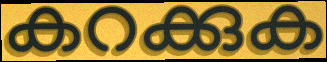
കറക്കുക